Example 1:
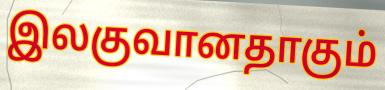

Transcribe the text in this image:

இலகுவானதாகும்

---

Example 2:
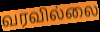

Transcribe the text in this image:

வரவில்லை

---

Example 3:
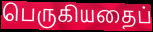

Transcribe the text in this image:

பெருகியதைப்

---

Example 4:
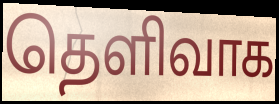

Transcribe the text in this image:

தெளிவாக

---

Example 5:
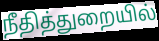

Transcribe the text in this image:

நீதித்துறையில்